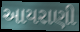
આયરાણી